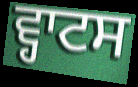
ਵ੍ਹਾਟਸ